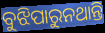
ବୁଝିପାରୁନଥାନ୍ତି